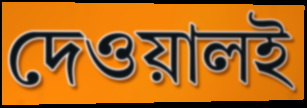
দেওয়ালই